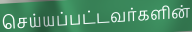
செய்யப்பட்டவர்களின்